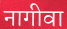
नागीवा